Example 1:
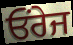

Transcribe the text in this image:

ਓਂਰੇਜ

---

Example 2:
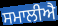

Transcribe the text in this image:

ਸਮਾਲੀਐ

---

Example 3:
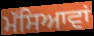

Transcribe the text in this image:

ਮੱਸਿਆਵਾਂ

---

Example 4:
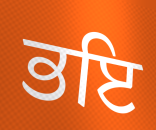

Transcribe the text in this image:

ਭਇ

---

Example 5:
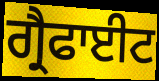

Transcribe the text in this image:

ਗ੍ਰੈਫਾਈਟ